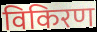
विकिरण